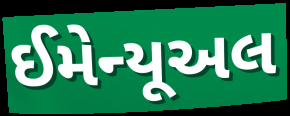
ઈમેન્યૂઅલ